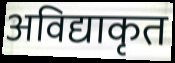
अविद्याकृत